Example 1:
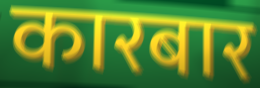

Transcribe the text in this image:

कारबार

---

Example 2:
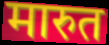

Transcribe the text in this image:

मारुत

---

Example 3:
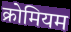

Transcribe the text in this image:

क्रोमियम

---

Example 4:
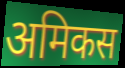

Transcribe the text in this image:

अमिकस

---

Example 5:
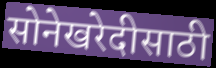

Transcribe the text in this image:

सोनेखरेदीसाठी